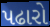
પઢારો